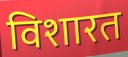
विशारत